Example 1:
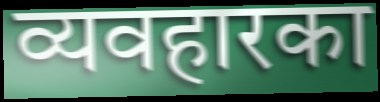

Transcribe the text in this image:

व्यवहारका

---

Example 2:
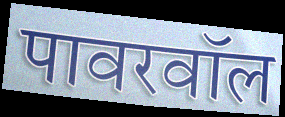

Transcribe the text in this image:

पावरवॉल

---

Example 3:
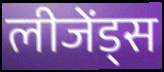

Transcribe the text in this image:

लीजेंड्स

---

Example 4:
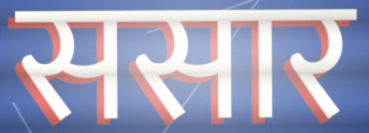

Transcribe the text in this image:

ससार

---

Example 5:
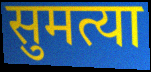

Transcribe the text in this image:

सुमत्या